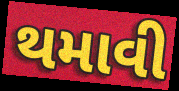
થમાવી